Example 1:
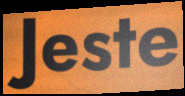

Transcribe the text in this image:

Jeste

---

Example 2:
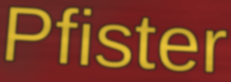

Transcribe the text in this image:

Pfister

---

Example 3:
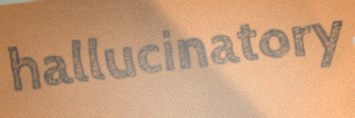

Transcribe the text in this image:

hallucinatory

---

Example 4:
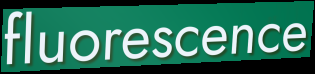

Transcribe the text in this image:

fluorescence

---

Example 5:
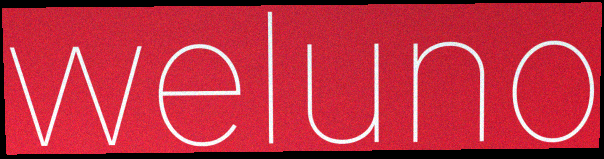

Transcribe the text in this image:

weluno